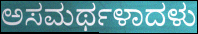
ಅಸಮರ್ಥಳಾದಳು